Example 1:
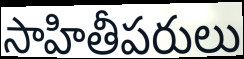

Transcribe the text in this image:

సాహితీపరులు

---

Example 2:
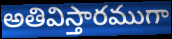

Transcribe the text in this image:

అతివిస్తారముగా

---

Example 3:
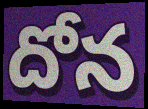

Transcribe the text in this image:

దోన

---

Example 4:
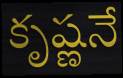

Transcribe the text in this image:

కృష్ణనే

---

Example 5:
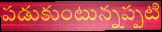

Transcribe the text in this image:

పడుకుంటున్నప్పటి